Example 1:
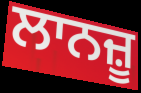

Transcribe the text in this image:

ਲਾਨਜ਼ੂ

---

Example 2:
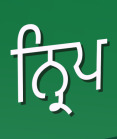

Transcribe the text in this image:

ਨ੍ਰਿਪ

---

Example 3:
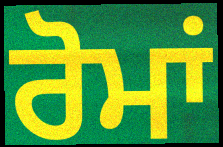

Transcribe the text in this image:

ਰੋਮਾਂ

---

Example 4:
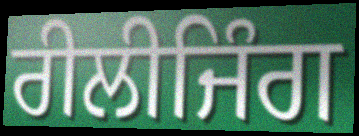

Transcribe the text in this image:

ਰੀਲੀਜਿੰਗ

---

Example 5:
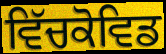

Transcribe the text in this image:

ਵਿੱਚਕੋਵਿਡ